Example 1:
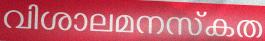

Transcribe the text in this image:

വിശാലമനസ്‌കത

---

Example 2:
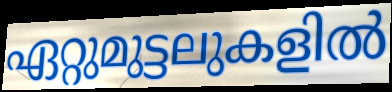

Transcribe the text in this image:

ഏറ്റുമുട്ടലുകളിൽ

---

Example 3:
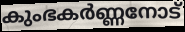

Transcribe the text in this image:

കുംഭകർണ്ണനോട്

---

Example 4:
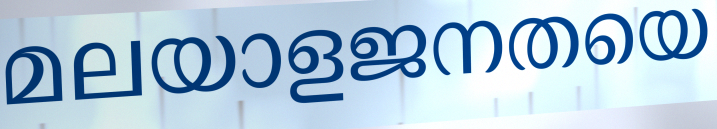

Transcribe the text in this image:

മലയാളജനതയെ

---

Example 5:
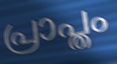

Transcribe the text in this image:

പ്രാപ്തം